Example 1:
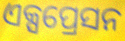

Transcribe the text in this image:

ଏକ୍ସପ୍ରେସନ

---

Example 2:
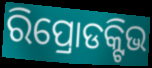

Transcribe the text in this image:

ରିପ୍ରୋଡକ୍ଟିଭ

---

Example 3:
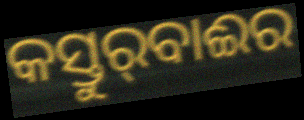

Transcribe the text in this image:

କସ୍ତୁର୍‍ବାଈର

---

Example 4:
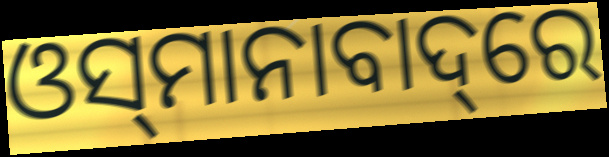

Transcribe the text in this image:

ଓସ୍‌ମାନାବାଦ୍‌ରେ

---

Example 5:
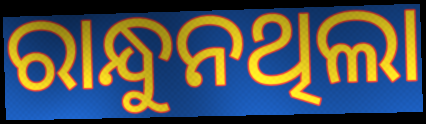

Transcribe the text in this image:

ରାନ୍ଧୁନଥିଲା